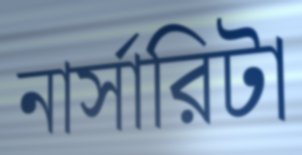
নার্সারিটা